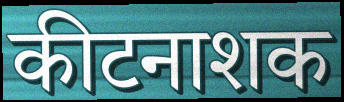
कीटनाशक